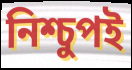
নিশ্চুপই